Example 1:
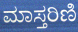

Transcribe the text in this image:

ಮಾಸ್ತರಿಣಿ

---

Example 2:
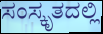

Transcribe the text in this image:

ಸಂಸ್ಕೃತದಲ್ಲಿ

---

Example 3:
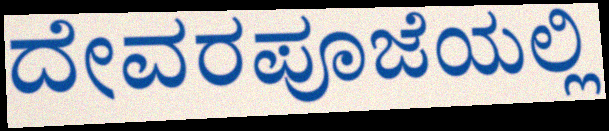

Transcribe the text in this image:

ದೇವರಪೂಜೆಯಲ್ಲಿ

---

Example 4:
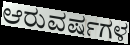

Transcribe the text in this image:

ಆರುವರ್ಷಗಳ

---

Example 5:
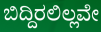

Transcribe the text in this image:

ಬಿದ್ದಿರಲಿಲ್ಲವೇ